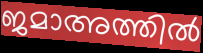
ജമാഅത്തിൽ